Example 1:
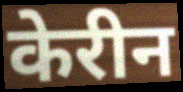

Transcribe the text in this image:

केरीन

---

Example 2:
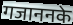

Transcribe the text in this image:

गजाननके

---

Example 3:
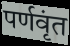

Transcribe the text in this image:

पर्णवृंत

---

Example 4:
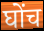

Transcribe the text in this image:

घोंच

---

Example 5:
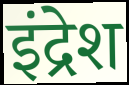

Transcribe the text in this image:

इंद्रेश